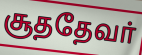
சூததேவர்